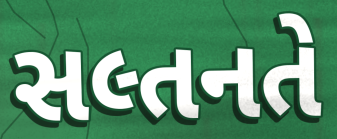
સલ્તનતે